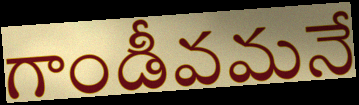
గాండీవమనే